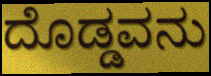
ದೊಡ್ಡವನು